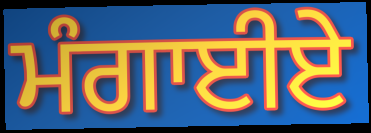
ਮੰਗਾਈਏ